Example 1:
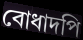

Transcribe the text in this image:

বোধাদপি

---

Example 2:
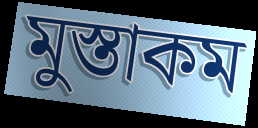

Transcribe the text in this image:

মুস্তাকম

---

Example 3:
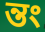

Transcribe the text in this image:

ন্তং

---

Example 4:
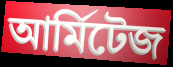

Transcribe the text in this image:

আর্মিটেজ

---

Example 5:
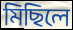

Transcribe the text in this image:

মিছিলে